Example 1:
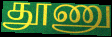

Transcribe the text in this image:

தூணு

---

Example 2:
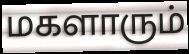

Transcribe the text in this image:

மகளாரும்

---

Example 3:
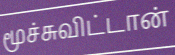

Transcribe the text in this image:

மூச்சுவிட்டான்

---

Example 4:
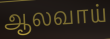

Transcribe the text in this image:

ஆலவாய்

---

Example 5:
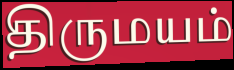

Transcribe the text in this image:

திருமயம்